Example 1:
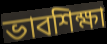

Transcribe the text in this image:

ভাবশিক্ষা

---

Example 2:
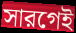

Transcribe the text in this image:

সারগেই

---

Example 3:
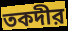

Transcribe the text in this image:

তকদীর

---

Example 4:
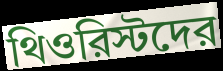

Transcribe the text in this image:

থিওরিস্টদের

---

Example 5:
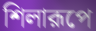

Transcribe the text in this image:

শিলারূপে